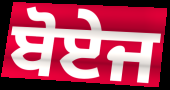
ਬੋਏਜ